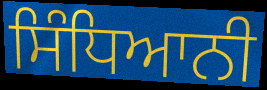
ਸਿੰਧਿਆਨੀ